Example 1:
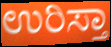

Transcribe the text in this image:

ಉರಿಸ್ತಾ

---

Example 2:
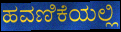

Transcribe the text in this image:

ಹವಣಿಕೆಯಲ್ಲಿ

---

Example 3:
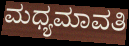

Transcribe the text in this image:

ಮಧ್ಯಮಾವತಿ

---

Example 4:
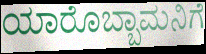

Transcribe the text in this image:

ಯಾರೊಬ್ಬಾಮನಿಗೆ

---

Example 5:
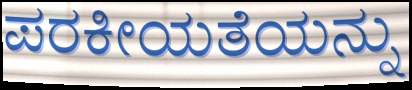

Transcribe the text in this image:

ಪರಕೀಯತೆಯನ್ನು